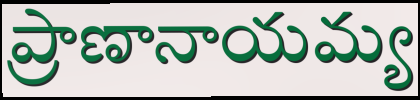
ప్రాణానాయమ్య